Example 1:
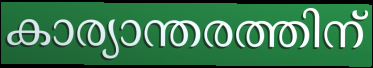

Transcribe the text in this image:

കാര്യാന്തരത്തിന്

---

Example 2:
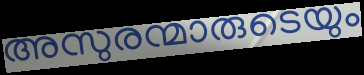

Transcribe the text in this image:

അസുരന്മാരുടെയും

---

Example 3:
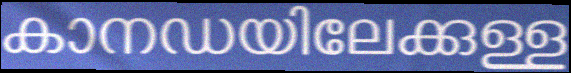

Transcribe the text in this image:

കാനഡയിലേക്കുള്ള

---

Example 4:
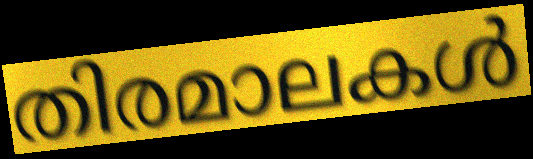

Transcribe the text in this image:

തിരമാലകൾ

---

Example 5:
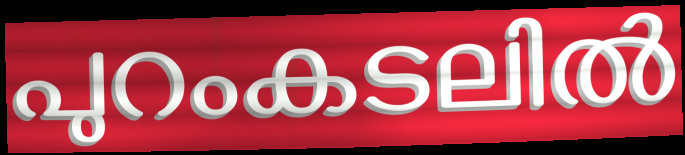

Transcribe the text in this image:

പുറംകടലിൽ